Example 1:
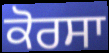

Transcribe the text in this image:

ਕੋਰਸਾ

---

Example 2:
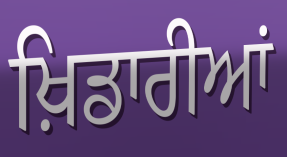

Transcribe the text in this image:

ਖ਼ਿਡਾਰੀਆਂ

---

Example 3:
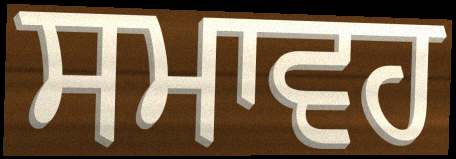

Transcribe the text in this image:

ਸਮਾਵਹ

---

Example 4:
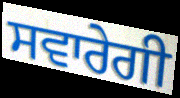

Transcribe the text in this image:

ਸਵਾਰੇਗੀ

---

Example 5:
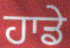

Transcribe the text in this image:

ਹਾਡੇ